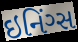
ઇનિંગ્સ